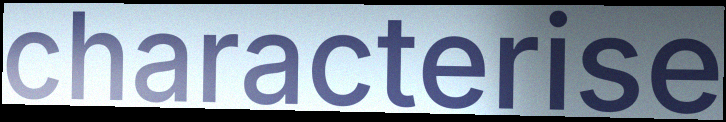
characterise